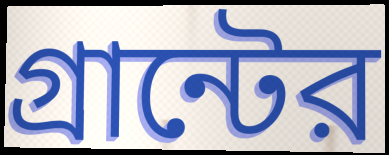
গ্রান্টের